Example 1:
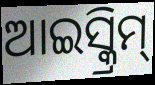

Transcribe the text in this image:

ଆଇସ୍କ୍ରିମ୍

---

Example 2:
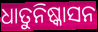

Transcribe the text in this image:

ଧାତୁନିଷ୍କାସନ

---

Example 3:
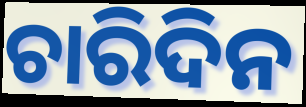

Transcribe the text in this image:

ଚାରିଦିନ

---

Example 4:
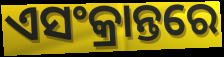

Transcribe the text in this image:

ଏସଂକ୍ରାନ୍ତରେ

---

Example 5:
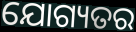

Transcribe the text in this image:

ଯୋଗ୍ୟତର